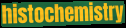
histochemistry